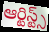
ఆర్టిస్ట్స్